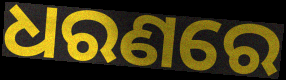
ଧରଣରେ